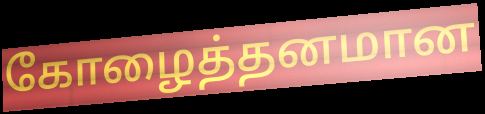
கோழைத்தனமான